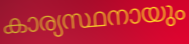
കാര്യസ്ഥനായും